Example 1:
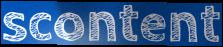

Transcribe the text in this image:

scontent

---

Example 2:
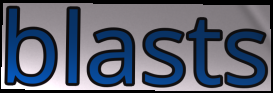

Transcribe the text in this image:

blasts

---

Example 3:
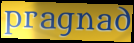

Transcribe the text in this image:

pragnad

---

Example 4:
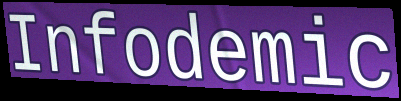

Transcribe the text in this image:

Infodemic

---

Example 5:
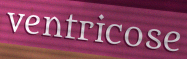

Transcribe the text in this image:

ventricose